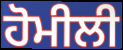
ਹੋਮੀਲੀ